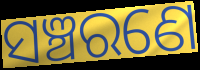
ସଞ୍ଚରଣେ